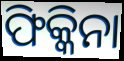
ଫିକ୍କିନା